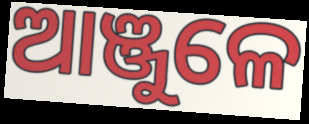
ଆଞ୍ଜୁଳେ